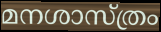
മനശാസ്ത്രം